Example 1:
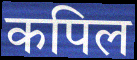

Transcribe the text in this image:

कपिल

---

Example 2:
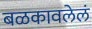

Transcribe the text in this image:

बळकावलेलं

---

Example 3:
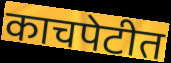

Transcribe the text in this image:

काचपेटीत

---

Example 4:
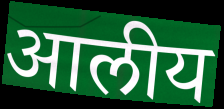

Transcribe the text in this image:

आलीय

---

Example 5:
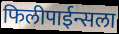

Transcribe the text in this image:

फिलीपाईन्सला